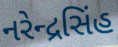
નરેન્દ્રસિંહ